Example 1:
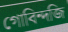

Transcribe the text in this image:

গোবিন্দজি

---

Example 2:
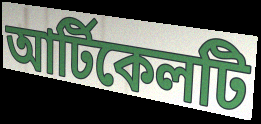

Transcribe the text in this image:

আর্টিকেলটি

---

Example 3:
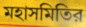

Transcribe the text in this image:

মহাসমিতির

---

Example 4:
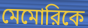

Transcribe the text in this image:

মেমোরিকে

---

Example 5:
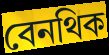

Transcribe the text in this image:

বেনথিক